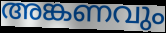
അങ്കണവും